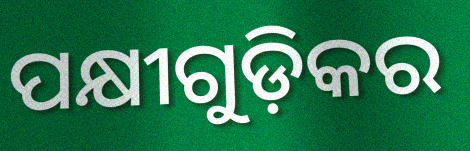
ପକ୍ଷୀଗୁଡ଼ିକର